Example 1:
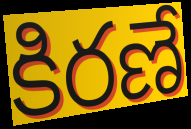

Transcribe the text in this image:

కిరణే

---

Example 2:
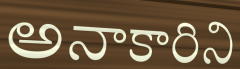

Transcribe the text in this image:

అనాకారిని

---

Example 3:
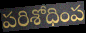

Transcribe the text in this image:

పరిశోధింప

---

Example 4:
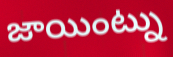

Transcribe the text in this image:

జాయింట్ను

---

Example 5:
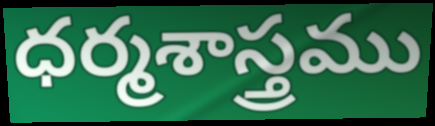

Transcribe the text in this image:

ధర్మశాస్త్రము